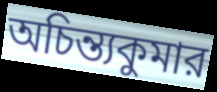
অচিন্ত্যকুমার